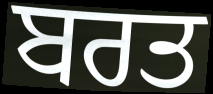
ਬਰਤ